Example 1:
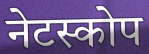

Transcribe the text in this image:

नेटस्कोप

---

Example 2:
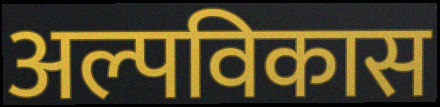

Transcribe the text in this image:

अल्पविकास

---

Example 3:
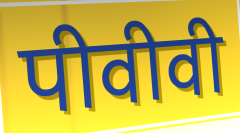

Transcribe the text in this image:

पीवीवी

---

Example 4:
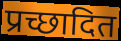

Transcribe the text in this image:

प्रच्छादित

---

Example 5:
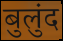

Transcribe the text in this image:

बुलुंद